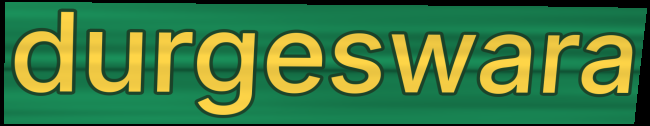
durgeswara